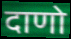
दाणो